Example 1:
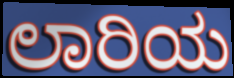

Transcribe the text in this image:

ಲಾರಿಯ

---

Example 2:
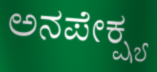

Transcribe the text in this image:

ಅನಪೇಕ್ಷ್ಯ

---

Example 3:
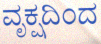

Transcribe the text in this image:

ವೃಕ್ಷದಿಂದ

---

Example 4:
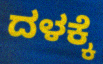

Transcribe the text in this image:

ದಳಕ್ಕೆ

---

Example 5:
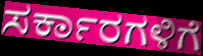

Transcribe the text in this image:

ಸರ್ಕಾರಗಳಿಗೆ